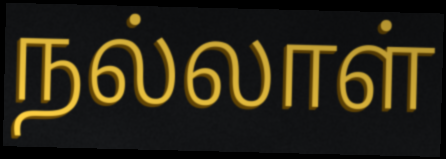
நல்லாள்